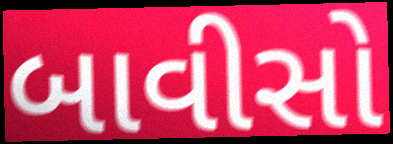
બાવીસો